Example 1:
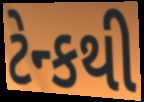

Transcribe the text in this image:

ટેન્કથી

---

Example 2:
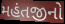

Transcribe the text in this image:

મહંતજીનો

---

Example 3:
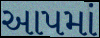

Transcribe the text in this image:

આપમાં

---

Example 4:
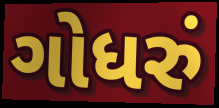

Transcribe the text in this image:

ગોધરું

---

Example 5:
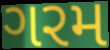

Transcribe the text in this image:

ગરમ